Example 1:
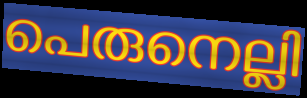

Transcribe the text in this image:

പെരുനെല്ലി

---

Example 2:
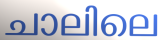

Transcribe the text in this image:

ചാലിലെ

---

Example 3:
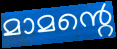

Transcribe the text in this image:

മാമന്റെ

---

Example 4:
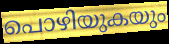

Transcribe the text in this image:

പൊഴിയുകയും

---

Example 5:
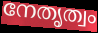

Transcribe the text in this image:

നേതൃത്വം